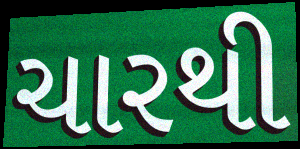
ચારથી